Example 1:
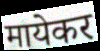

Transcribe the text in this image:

मायेकर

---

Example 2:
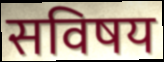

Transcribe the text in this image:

सविषय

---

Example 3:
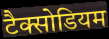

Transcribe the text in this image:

टैक्सोडियम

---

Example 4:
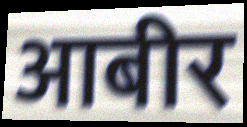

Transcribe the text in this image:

आबीर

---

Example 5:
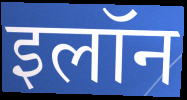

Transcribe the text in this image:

इलॉन